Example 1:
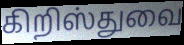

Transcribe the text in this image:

கிறிஸ்துவை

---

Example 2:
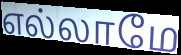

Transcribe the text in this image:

எல்லாமே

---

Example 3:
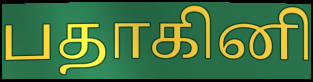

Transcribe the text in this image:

பதாகினி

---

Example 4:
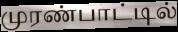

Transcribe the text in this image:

முரண்பாட்டில்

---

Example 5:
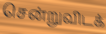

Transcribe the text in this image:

சென்றுவிடக்